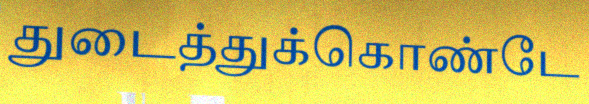
துடைத்துக்கொண்டே